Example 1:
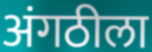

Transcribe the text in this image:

अंगठीला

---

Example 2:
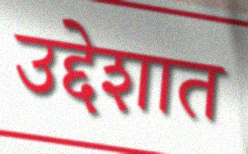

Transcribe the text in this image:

उद्देशात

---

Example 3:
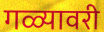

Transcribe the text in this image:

गळ्यावरी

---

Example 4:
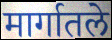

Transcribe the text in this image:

मार्गातले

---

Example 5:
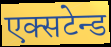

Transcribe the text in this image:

एक्सटेन्ड